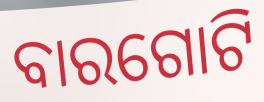
ବାରଗୋଟି